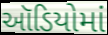
ઑડિયોમાં